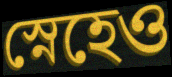
স্নেহেও